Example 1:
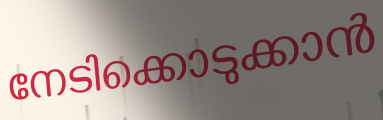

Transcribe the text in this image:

നേടിക്കൊടുക്കാൻ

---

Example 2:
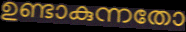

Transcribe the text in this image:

ഉണ്ടാകുന്നതോ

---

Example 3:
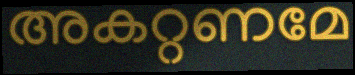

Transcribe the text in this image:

അകറ്റണമേ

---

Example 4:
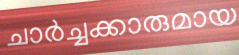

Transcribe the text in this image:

ചാർച്ചക്കാരുമായ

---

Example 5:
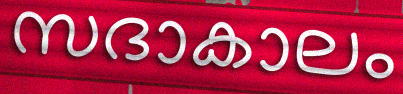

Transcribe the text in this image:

സദാകാലം